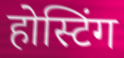
होस्टिंग